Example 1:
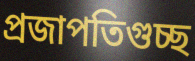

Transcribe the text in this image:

প্রজাপতিগুচ্ছ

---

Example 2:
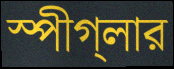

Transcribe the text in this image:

স্পীগ্‌লার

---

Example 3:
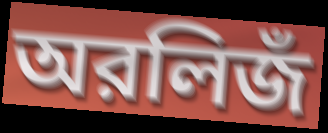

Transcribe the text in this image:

অরলিজঁ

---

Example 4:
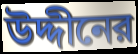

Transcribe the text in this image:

উদ্দীনের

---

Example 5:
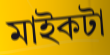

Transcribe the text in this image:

মাইকটা